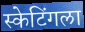
स्केटिंगला